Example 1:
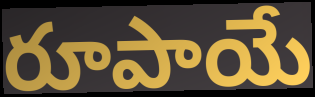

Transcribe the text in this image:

రూపాయే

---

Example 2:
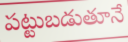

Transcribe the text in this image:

పట్టుబడుతూనే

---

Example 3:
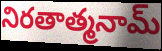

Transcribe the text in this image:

నిరతాత్మనామ్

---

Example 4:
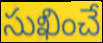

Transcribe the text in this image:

సుఖించే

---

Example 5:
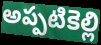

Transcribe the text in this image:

అప్పటికెల్లి